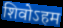
शिवोऽहम